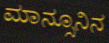
ಮಾನ್ಸೂನಿನ